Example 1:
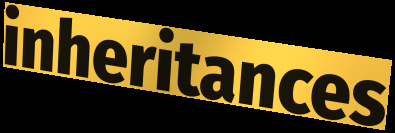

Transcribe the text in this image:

inheritances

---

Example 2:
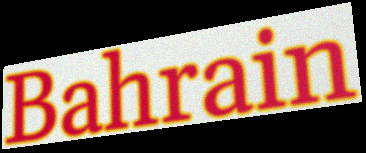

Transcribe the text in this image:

Bahrain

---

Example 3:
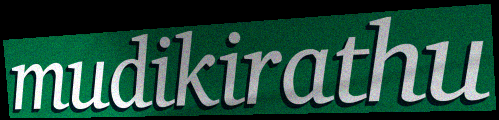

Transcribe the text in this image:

mudikirathu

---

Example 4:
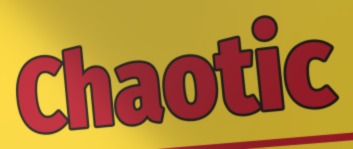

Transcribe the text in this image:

Chaotic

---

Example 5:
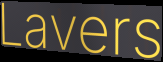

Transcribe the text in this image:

Lavers